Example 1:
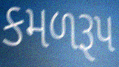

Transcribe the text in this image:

કમળરૂપ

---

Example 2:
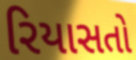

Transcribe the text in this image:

રિયાસતો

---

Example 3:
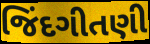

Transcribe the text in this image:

જિંદગીતણી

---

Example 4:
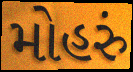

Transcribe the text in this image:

મોહરું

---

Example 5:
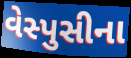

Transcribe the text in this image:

વેસ્પુસીના